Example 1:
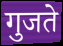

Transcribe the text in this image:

गुजते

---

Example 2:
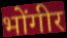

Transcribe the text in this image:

भोंगीर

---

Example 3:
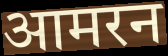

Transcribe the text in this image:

आमरन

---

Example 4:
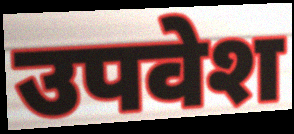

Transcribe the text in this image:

उपवेश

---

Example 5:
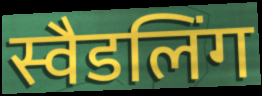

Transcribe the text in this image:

स्वैडलिंग